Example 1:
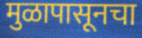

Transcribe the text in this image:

मुळापासूनचा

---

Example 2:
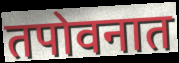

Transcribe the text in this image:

तपोवनात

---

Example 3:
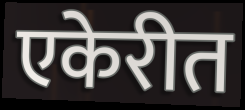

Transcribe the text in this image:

एकेरीत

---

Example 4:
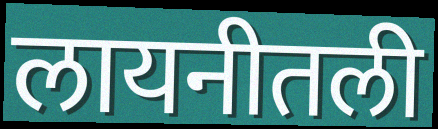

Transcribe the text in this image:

लायनीतली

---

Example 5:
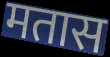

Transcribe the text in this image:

मतास